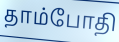
தாம்போதி